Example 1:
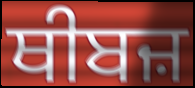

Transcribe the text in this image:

ਥੀਬਜ਼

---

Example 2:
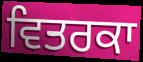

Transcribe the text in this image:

ਵਿਤਰਕਾ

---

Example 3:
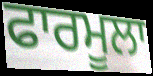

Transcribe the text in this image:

ਫਾਰਮੂਲਾ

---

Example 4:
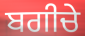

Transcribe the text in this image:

ਬਗੀਚੇ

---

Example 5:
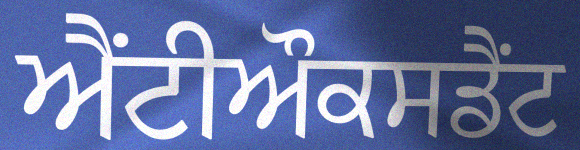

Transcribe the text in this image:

ਐਂਟੀਔਕਸਡੈਂਟ